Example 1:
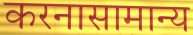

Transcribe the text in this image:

करनासामान्य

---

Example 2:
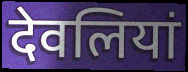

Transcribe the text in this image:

देवलियां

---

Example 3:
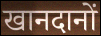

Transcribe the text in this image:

खानदानों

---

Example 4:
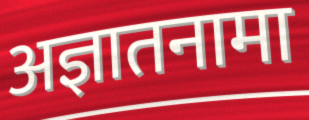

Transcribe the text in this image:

अज्ञातनामा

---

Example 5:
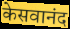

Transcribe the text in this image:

केसवानंद